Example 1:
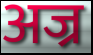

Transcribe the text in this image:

अज्र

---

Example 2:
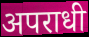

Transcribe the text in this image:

अपराधी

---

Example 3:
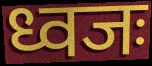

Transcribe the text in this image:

ध्वजः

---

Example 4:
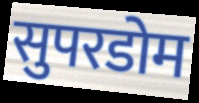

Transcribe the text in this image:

सुपरडोम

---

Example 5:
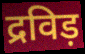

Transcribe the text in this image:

द्रविड़